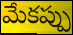
మేకప్పు